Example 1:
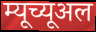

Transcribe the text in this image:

म्यूच्यूअल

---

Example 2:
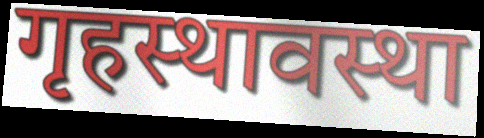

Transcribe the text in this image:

गृहस्थावस्था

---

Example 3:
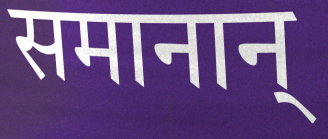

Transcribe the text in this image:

समानान्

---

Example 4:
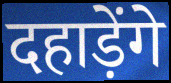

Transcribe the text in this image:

दहाड़ेंगे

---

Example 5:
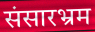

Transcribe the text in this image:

संसारभ्रम